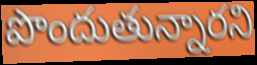
పొందుతున్నారని